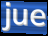
jue